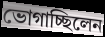
ভোগাচ্ছিলেন